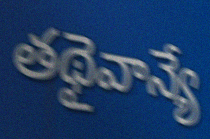
తథైవాన్యే